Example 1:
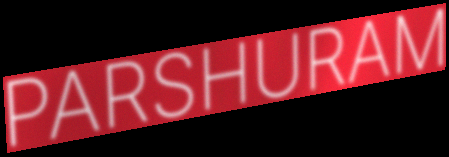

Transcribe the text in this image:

PARSHURAM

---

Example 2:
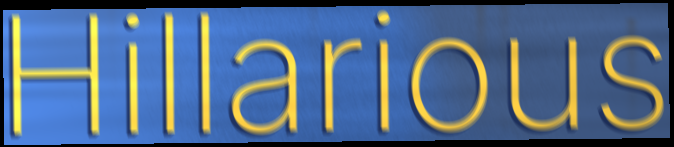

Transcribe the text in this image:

Hillarious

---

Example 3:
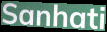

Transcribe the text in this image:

Sanhati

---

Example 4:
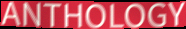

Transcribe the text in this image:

ANTHOLOGY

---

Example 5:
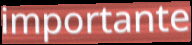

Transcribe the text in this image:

importante